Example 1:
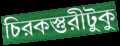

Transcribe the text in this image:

চিরকস্তুরীটুকু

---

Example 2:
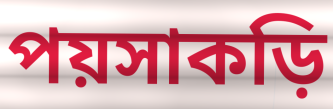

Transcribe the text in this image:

পয়সাকড়ি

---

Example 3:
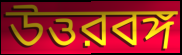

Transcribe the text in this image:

উত্তরবঙ্গ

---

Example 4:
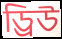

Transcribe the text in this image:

ড্রিউ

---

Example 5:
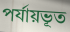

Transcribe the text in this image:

পর্যায়ভূত